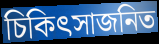
চিকিৎসাজনিত